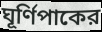
ঘূর্ণিপাকের